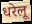
धरेलू